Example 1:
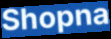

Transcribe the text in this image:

Shopna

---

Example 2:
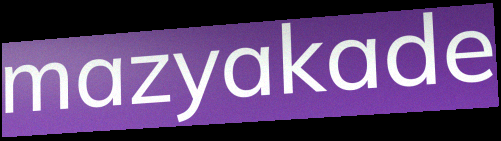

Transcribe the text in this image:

mazyakade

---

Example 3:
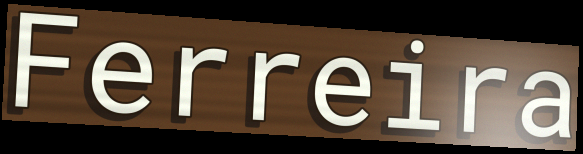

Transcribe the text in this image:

Ferreira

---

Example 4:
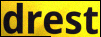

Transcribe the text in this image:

drest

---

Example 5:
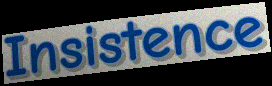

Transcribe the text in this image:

Insistence